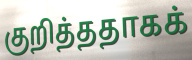
குறித்ததாகக்